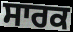
ਸਾਰਕ